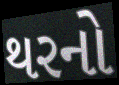
થરનો